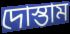
দোস্তাম